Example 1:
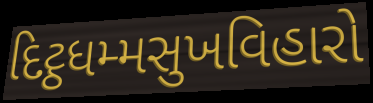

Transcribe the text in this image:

દિટ્ઠધમ્મસુખવિહારો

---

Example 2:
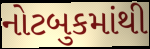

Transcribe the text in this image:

નોટબુકમાંથી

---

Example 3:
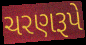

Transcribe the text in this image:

ચરણરૂપે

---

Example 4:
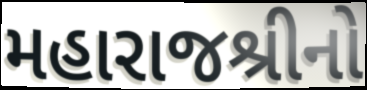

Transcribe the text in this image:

મહારાજશ્રીનો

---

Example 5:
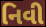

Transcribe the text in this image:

નિવી